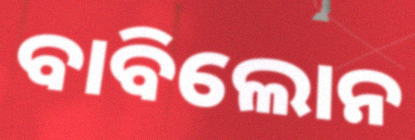
ବାବିଲୋନ